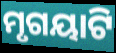
ମୃଗୟାଟି